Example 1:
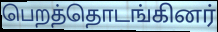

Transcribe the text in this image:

பெறத்தொடங்கினர்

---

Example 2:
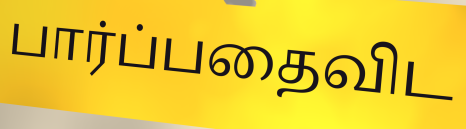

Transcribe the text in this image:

பார்ப்பதைவிட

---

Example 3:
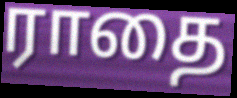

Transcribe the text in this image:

ராதை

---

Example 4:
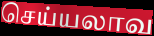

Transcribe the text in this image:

செய்யலாவ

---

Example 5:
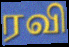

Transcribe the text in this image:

ரவி